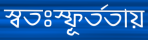
স্বতঃস্ফূর্ততায়